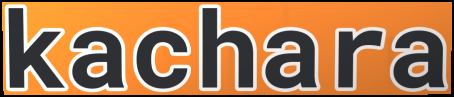
kachara